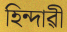
হিন্দাৱী